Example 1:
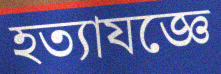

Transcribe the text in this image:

হত্যাযজ্ঞে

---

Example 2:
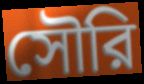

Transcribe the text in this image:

সৌরি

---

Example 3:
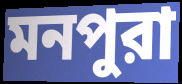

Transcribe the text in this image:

মনপুরা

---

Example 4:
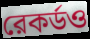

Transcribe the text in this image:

রেকর্ডও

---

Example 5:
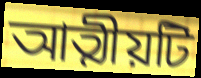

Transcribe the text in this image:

আত্মীয়টি